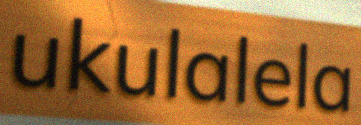
ukulalela